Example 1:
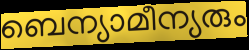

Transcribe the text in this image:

ബെന്യാമീന്യരും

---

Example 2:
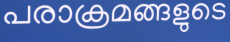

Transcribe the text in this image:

പരാക്രമങ്ങളുടെ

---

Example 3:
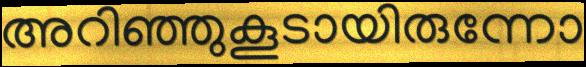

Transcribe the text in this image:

അറിഞ്ഞുകൂടായിരുന്നോ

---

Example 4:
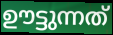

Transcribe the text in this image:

ഊട്ടുന്നത്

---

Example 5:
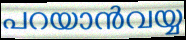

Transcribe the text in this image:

പറയാൻവയ്യ